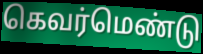
கெவர்மெண்டு